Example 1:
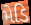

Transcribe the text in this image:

મેડિ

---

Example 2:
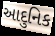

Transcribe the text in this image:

આદુનિક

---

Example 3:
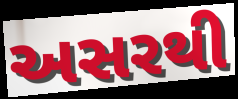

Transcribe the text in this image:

અસરથી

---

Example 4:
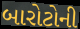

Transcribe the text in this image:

બારોટોની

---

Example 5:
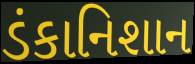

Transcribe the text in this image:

ડંકાનિશાન